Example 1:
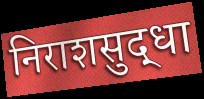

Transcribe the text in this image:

निराशसुद्धा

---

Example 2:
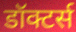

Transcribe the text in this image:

डॉक्टर्स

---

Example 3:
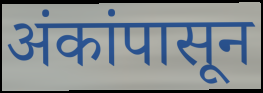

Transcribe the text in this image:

अंकांपासून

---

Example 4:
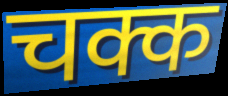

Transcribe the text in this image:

चक्‍क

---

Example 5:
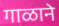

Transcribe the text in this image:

गाळाने